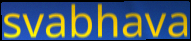
svabhava